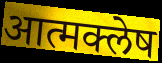
आत्मक्लेष